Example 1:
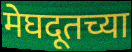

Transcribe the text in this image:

मेघदूतच्या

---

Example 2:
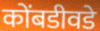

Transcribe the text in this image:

कोंबडीवडे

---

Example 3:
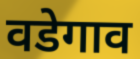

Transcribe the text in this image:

वडेगाव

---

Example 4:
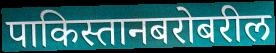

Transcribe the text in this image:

पाकिस्तानबरोबरील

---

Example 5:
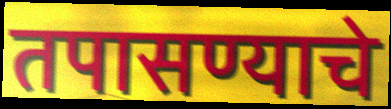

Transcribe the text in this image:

तपासण्याचे